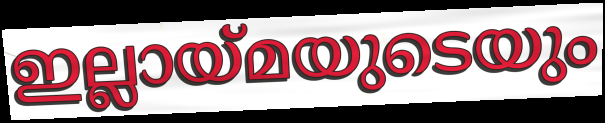
ഇല്ലായ്മയുടെയും